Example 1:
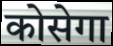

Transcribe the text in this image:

कोसेगा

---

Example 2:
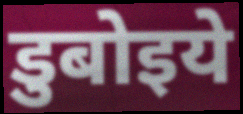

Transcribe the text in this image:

डुबोइये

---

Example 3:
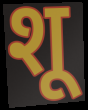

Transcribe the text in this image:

शू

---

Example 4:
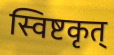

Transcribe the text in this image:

स्विष्टकृत्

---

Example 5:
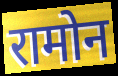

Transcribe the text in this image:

रामोन